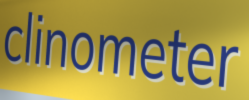
clinometer